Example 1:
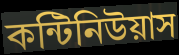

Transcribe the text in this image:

কন্টিনিউয়াস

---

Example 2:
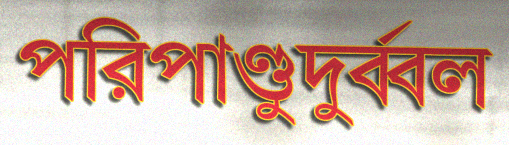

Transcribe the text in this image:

পরিপাণ্ডুদুর্ব্বল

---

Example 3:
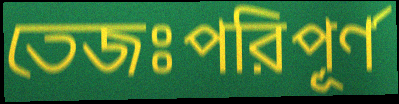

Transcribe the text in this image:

তেজঃপরিপূর্ণ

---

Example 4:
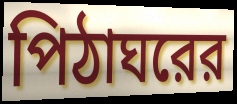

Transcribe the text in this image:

পিঠাঘরের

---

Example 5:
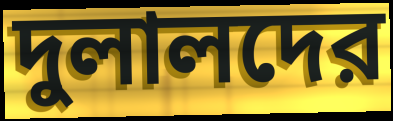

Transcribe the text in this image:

দুলালদের